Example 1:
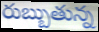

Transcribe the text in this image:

రుబ్బుతున్న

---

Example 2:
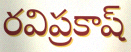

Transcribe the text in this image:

రవిప్రకాష్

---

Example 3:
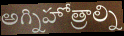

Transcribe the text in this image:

అగ్నిహోత్రాల్ని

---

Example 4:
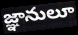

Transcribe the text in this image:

జ్ఞానులూ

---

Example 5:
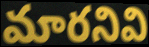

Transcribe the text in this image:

మారనివి